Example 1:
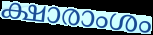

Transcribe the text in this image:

ക്ഷാരാംശം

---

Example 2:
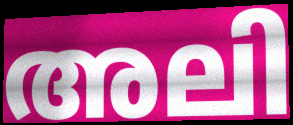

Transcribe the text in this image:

അലി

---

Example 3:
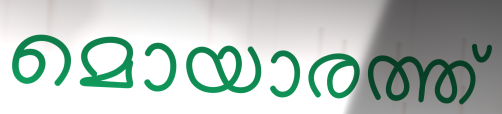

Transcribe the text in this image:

മൊയാരത്ത്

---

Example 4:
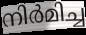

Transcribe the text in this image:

നിർമിച്ച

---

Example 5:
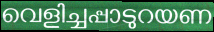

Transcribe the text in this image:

വെളിച്ചപ്പാടുറയണ